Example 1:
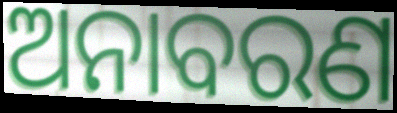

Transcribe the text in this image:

ଅନାବରଣ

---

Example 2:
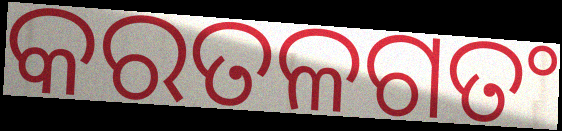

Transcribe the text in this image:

କରତଳଗତଂ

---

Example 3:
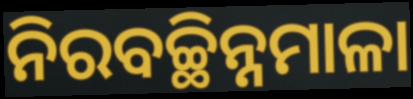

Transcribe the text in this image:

ନିରବଚ୍ଛିନ୍ନମାଳା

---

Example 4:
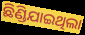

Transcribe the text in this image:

ଛିଣ୍ଡିଯାଇଥିଲା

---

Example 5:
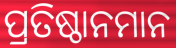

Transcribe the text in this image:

ପ୍ରତିଷ୍ଠାନମାନ